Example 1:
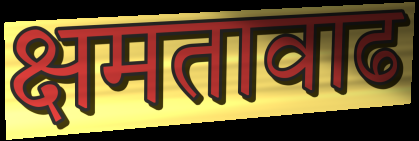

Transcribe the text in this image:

क्षमतावाढ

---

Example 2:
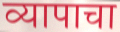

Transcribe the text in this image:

व्यापाचा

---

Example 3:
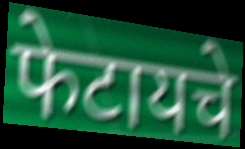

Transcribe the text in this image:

फेटायचे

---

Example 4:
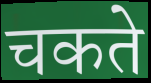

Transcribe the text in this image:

चकते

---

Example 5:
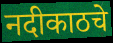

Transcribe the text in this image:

नदीकाठचे